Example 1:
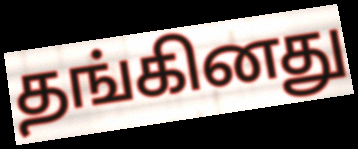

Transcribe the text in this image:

தங்கினது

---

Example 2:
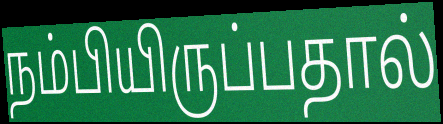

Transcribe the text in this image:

நம்பியிருப்பதால்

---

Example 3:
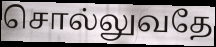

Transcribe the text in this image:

சொல்லுவதே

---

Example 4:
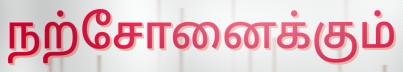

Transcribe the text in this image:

நற்சோனைக்கும்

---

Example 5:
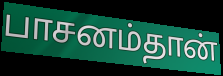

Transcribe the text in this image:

பாசனம்தான்